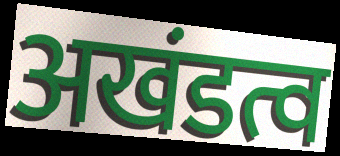
अखंडत्व